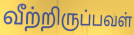
வீற்றிருப்பவள்